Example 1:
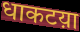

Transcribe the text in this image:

धाकटय़ा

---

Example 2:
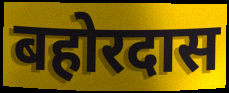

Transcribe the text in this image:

बहोरदास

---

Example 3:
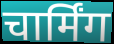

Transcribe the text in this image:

चार्मिंग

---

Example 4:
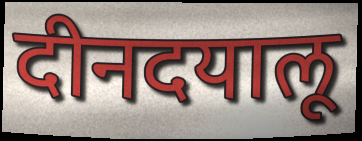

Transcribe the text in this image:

दीनदयालू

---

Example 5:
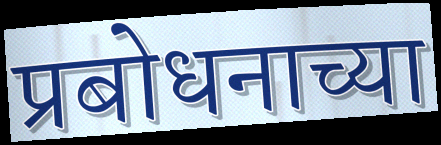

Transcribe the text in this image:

प्रबोधनाच्या